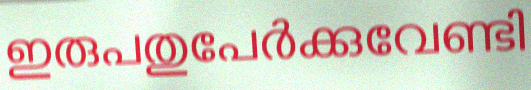
ഇരുപതുപേർക്കുവേണ്ടി